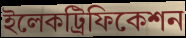
ইলেকট্রিফিকেশন